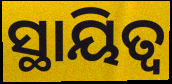
ସ୍ଥାୟିତ୍ୱ